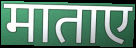
माताए